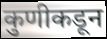
कुणीकडून